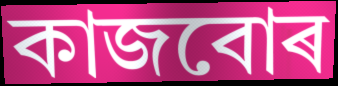
কাজবোৰ